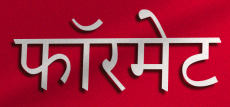
फॉरमेट